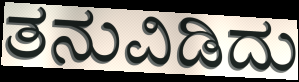
ತನುವಿಡಿದು